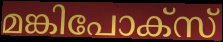
മങ്കിപോക്സ്